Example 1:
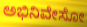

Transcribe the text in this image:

ಅಭಿನಿವೇಸೋ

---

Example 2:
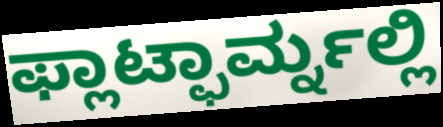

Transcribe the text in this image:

ಫ್ಲಾಟ್ಫಾರ್ಮ್ನಲ್ಲಿ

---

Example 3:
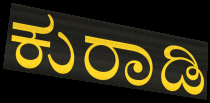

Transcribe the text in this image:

ಕುರಾಡಿ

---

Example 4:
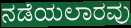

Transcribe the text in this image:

ನಡೆಯಲಾರವು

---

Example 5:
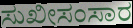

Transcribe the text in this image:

ಸುಖೀಸಂಸಾರ